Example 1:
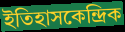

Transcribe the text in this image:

ইতিহাসকেন্দ্রিক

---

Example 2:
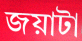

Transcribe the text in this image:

জয়াটা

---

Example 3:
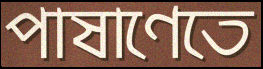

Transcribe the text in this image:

পাষাণেতে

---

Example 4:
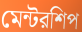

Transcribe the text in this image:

মেন্টরশিপ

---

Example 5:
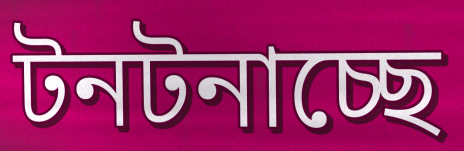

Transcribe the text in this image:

টনটনাচ্ছে